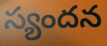
స్యందన